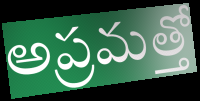
అప్రమత్తో